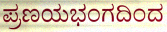
ಪ್ರಣಯಭಂಗದಿಂದ